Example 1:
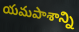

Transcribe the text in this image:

యమపాశాన్ని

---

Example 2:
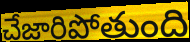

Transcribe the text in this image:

చేజారిపోతుంది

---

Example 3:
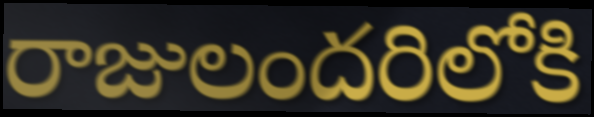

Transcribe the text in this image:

రాజులందరిలోకి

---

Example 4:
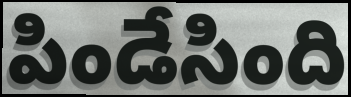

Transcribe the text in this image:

పిండేసింది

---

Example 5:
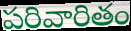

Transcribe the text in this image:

పరివారితం